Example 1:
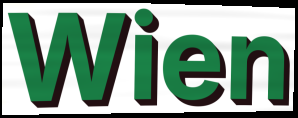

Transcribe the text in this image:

Wien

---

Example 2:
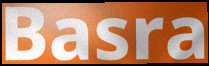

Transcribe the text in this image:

Basra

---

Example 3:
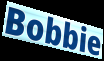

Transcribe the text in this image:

Bobbie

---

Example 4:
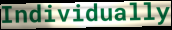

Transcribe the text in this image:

Individually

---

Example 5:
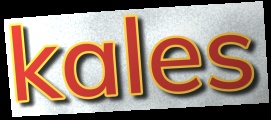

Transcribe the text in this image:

kales